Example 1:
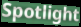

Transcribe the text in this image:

Spotlight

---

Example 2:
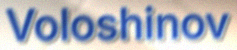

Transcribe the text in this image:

Voloshinov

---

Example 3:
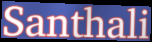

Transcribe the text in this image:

Santhali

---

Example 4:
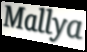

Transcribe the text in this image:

Mallya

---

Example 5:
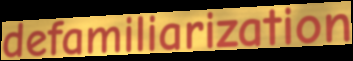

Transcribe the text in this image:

defamiliarization